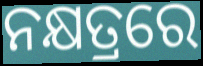
ନକ୍ଷତ୍ରରେ